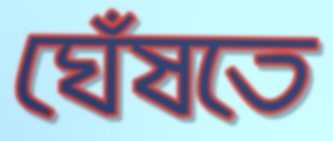
ঘেঁষতে